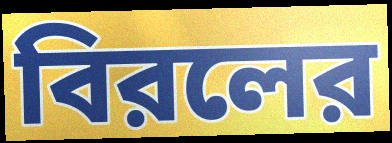
বিরলের